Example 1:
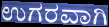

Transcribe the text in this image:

ಉಗರವಾಗಿ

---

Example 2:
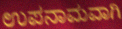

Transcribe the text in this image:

ಉಪನಾಮವಾಗಿ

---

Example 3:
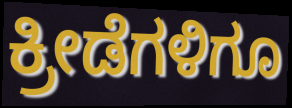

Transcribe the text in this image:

ಕ್ರೀಡೆಗಳಿಗೂ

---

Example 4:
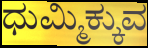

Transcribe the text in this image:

ಧುಮ್ಮಿಕ್ಕುವ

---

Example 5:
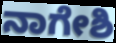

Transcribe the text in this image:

ನಾಗೇಶಿ